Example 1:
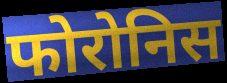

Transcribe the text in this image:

फोरोनिस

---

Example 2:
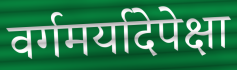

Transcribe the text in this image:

वर्गमर्यादेपेक्षा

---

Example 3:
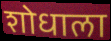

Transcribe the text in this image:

शोधाला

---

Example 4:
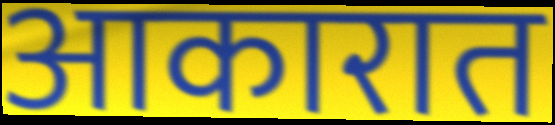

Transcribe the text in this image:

आकारात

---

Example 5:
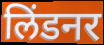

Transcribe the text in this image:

लिंडनर